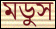
মডুস